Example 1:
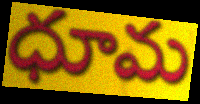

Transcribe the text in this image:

ధూమ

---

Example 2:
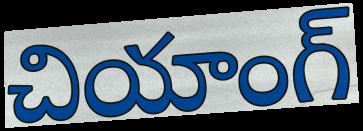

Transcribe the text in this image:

చియాంగ్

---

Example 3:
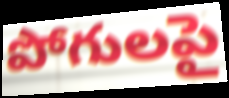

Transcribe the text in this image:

పోగులపై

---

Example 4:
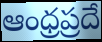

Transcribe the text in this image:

ఆంధ్రప్రదే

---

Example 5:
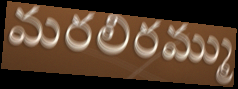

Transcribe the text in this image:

మరలిరమ్ము